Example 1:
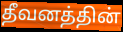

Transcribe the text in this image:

தீவனத்தின்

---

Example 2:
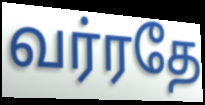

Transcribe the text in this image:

வர்ரதே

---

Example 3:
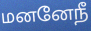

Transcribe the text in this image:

மனனேநீ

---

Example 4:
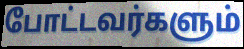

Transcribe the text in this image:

போட்டவர்களும்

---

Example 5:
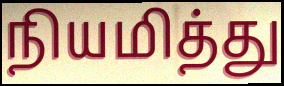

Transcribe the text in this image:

நியமித்து